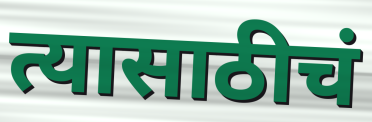
त्यासाठीचं